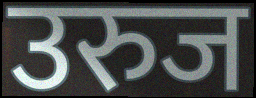
उरुज